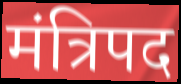
मंत्रिपद